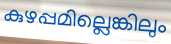
കുഴപ്പമില്ലെങ്കിലും